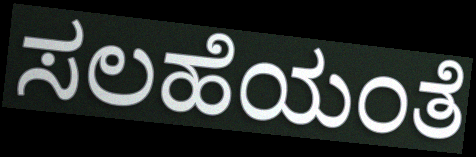
ಸಲಹೆಯಂತೆ